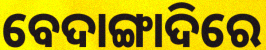
ବେଦାଙ୍ଗାଦିରେ